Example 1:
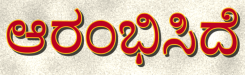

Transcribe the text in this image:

ಆರಂಭಿಸಿದೆ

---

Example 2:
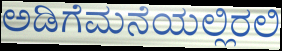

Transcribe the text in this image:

ಅಡಿಗೆಮನೆಯಲ್ಲಿರಲಿ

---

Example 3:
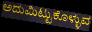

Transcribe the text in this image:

ಅದುಮಿಟ್ಟುಕೊಳ್ಳುವ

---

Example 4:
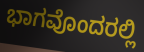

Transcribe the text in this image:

ಭಾಗವೊಂದರಲ್ಲಿ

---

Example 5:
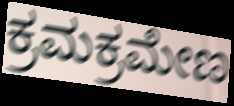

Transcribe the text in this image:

ಕ್ರಮಕ್ರಮೇಣ